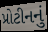
પ્રોટીનનું